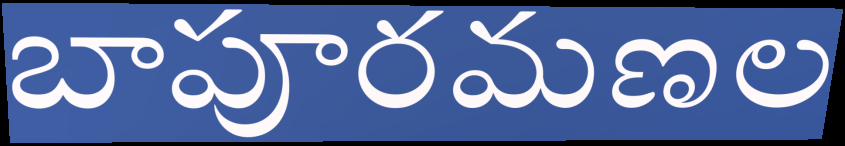
బాపూరమణల